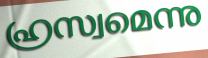
ഹ്രസ്വമെന്നു